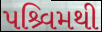
પશ્ર્વિમથી